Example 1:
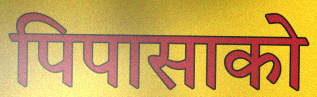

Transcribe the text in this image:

पिपासाको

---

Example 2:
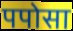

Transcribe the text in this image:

पपोसा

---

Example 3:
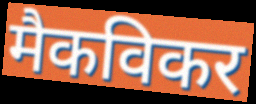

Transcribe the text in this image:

मैकविकर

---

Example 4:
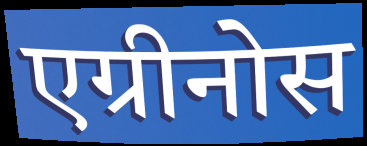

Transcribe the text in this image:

एग्रीनोस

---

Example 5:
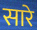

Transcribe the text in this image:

सारे